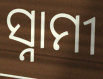
ସ୍ନାମୀ